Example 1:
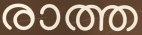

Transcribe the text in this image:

രാത്ത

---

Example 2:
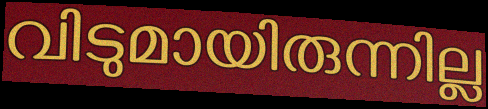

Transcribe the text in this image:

വിടുമായിരുന്നില്ല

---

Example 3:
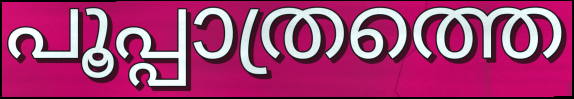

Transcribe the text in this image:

പൂപ്പാത്രത്തെ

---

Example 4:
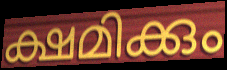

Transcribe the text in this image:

ക്ഷമിക്കും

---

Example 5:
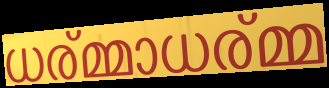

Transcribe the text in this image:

ധര്മ്മാധര്മ്മ